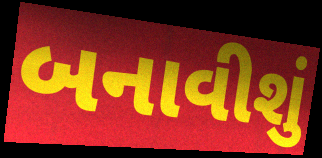
બનાવીશું